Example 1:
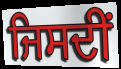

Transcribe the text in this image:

ਜਿਸਦੀਂ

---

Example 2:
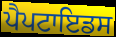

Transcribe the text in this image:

ਪੈਪਟਾਇਡਸ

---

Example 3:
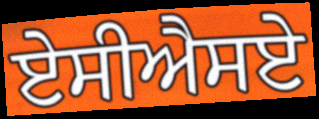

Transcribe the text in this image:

ਏਸੀਐਸਏ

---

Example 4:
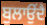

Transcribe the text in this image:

ਬੁਲਾਉਂਦੈ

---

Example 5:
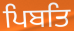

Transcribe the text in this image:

ਪਿਬਤਿ